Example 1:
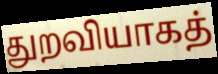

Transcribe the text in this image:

துறவியாகத்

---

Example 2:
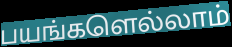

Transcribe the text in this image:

பயங்களெல்லாம்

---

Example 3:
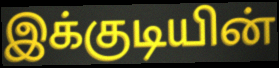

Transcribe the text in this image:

இக்குடியின்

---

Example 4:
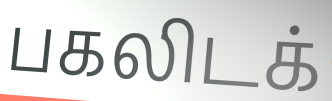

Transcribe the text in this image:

பகலிடக்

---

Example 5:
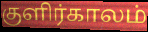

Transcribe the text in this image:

குளிர்காலம்